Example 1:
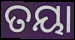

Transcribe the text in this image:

ତୟା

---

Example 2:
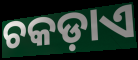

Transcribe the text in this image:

ଚକଡ଼ାଏ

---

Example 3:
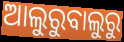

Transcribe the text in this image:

ଆଲୁରୁବାଲୁରୁ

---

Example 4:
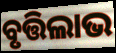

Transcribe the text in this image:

ବୃତ୍ତିଲାଭ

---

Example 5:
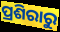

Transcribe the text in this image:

ପ୍ରଶିରାରୁ